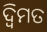
ଦ୍ୱିମତ